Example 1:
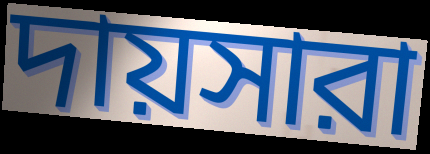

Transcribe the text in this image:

দায়সারা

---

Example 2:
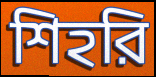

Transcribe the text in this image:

শিহরি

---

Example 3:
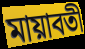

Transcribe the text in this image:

মায়াবতী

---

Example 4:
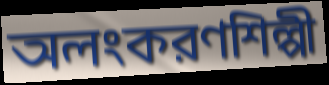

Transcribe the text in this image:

অলংকরণশিল্পী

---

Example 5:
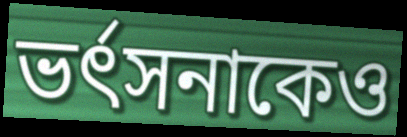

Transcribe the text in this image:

ভর্ৎসনাকেও